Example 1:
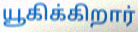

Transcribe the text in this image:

யூகிக்கிறார்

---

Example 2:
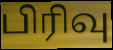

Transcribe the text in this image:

பிரிவு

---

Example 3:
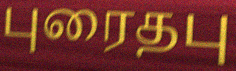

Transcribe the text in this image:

புரைதபு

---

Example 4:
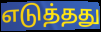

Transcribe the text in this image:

எடுத்தது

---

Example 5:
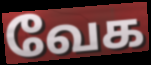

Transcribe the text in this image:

வேக